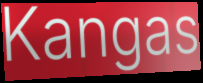
Kangas